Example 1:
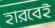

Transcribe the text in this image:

হারবেই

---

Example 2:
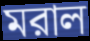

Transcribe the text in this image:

মরাল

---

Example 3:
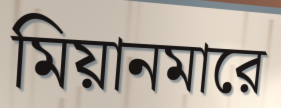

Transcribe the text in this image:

মিয়ানমারে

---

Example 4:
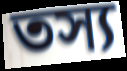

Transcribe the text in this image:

তস্য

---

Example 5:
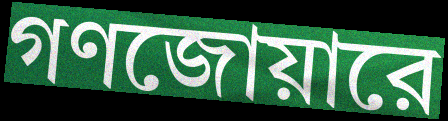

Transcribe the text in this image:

গণজোয়ারে